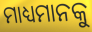
ମାଧ୍ଯମାନକୁ